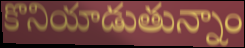
కొనియాడుతున్నాం